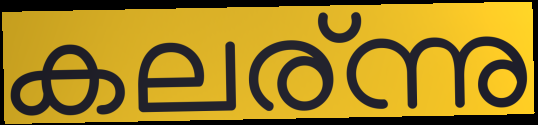
കലര്ന്നു